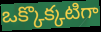
ఒక్కొక్కటిగా